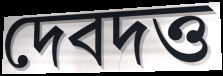
দেবদত্ত